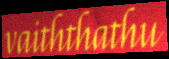
vaiththathu